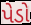
પેડો